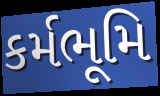
કર્મભૂમિ